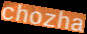
chozha